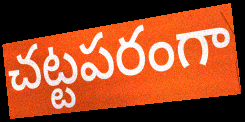
చట్టపరంగా